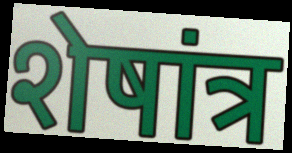
शेषांत्र